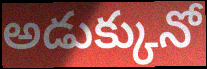
అడుక్కునో